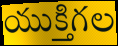
యుక్తిగల